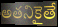
అతనికైతే